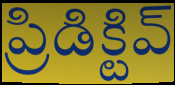
ప్రిడిక్టివ్